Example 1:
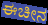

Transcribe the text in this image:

ಈಚೀನ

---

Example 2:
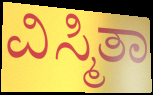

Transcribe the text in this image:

ವಿಸ್ಮಿತಾ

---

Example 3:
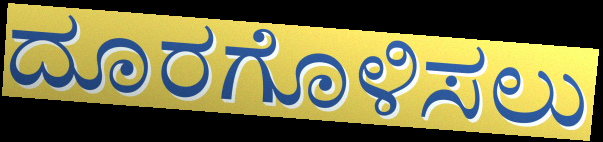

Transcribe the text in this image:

ದೂರಗೊಳಿಸಲು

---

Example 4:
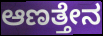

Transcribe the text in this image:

ಆಣತ್ತೇನ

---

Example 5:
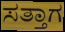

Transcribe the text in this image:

ಸತ್ತಾಗ